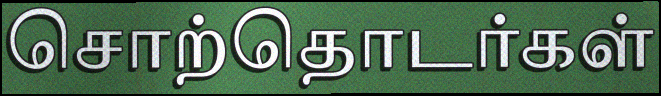
சொற்தொடர்கள்